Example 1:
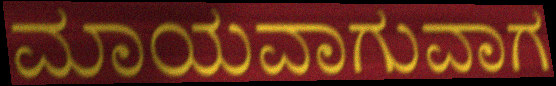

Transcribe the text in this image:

ಮಾಯವಾಗುವಾಗ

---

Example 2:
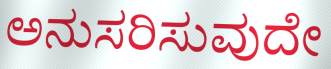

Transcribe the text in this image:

ಅನುಸರಿಸುವುದೇ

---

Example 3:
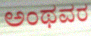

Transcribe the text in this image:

ಅಂಥವರ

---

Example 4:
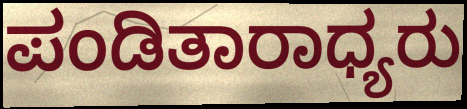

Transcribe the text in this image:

ಪಂಡಿತಾರಾಧ್ಯರು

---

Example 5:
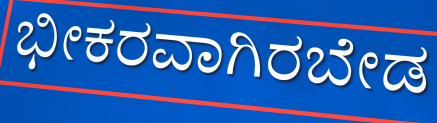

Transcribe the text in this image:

ಭೀಕರವಾಗಿರಬೇಡ